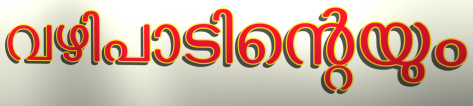
വഴിപാടിന്റെയും